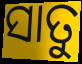
ସାତୁ